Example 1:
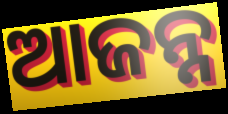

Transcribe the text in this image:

ଆଜନ୍ନ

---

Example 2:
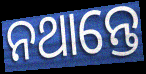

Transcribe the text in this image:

ନଥାନ୍ତେ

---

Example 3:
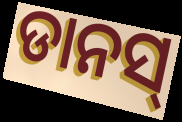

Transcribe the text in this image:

ଡାନସ୍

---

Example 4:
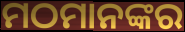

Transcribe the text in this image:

ମଠମାନଙ୍କର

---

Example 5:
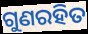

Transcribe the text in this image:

ଗୁଣରହିତ